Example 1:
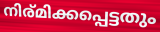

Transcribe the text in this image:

നിര്മിക്കപ്പെട്ടതും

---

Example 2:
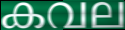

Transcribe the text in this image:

കവല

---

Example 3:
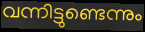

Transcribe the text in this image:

വന്നിട്ടുണ്ടെന്നും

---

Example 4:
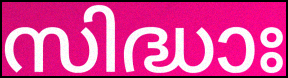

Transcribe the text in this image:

സിദ്ധാഃ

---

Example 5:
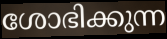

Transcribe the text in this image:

ശോഭിക്കുന്ന